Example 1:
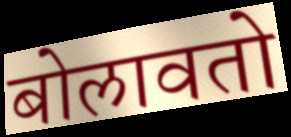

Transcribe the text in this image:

बोलावतो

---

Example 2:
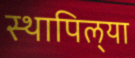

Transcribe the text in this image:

स्थापिल्या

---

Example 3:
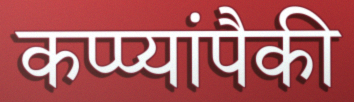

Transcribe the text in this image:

कप्प्यांपैकी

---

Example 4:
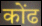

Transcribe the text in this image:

कोंढ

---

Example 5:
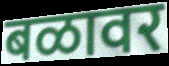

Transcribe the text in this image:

बळावर